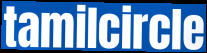
tamilcircle